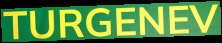
TURGENEV